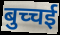
बुच्चई